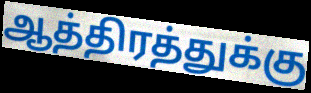
ஆத்திரத்துக்கு